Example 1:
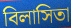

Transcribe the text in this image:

বিলাসিতা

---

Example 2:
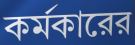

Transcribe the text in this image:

কর্মকারের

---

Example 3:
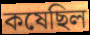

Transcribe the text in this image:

কষেছিল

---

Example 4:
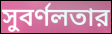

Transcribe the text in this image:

সুবর্ণলতার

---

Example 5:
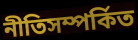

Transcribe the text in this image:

নীতিসম্পর্কিত